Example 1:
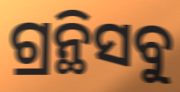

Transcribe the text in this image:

ଗ୍ରନ୍ଥିସବୁ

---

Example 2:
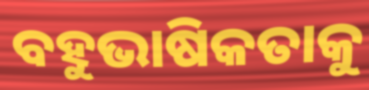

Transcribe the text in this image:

ବହୁଭାଷିକତାକୁ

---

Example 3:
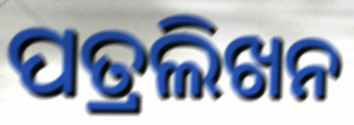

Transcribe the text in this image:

ପତ୍ରଲିଖନ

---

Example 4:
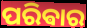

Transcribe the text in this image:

ପରିଵାର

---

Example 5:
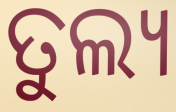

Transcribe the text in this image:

ତୁଲ୍ୟ